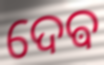
ଦେଵ